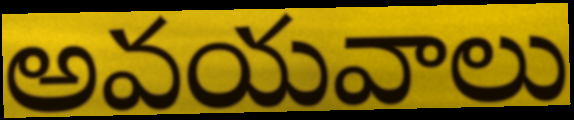
అవయవాలు